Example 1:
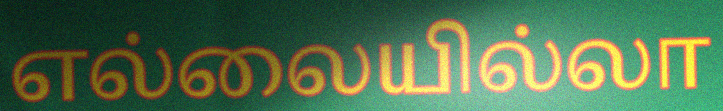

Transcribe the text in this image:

எல்லையில்லா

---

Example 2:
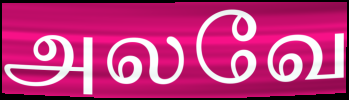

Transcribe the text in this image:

அலவே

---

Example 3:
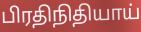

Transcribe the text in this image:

பிரதிநிதியாய்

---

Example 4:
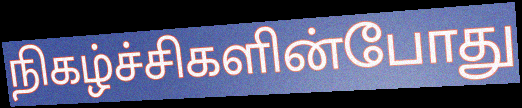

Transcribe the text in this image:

நிகழ்ச்சிகளின்போது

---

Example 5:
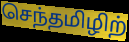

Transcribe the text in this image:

செந்தமிழிற்